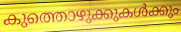
കുത്തൊഴുക്കുകൾക്കും